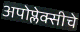
अपोप्लेक्सीचे